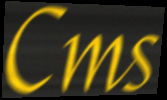
Cms